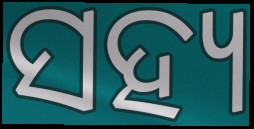
ସହ୍ୟ